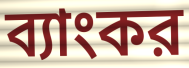
ব্যাংকর